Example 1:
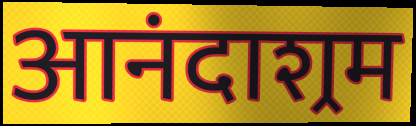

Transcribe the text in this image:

आनंदाश्रम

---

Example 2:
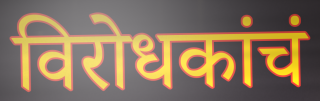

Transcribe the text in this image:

विरोधकांचं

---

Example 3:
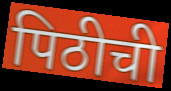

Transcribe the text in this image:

पिठीची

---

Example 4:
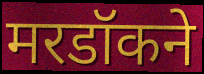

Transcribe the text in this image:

मरडॉकने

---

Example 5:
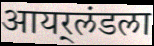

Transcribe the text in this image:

आयर्लंडला